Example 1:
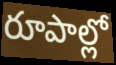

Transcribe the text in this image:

రూపాల్లో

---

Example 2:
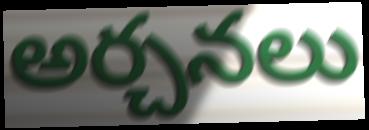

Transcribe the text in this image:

అర్చనలు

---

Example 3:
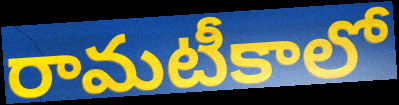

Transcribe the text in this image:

రామటీకాలో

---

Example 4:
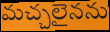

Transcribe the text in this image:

మచ్చలైనను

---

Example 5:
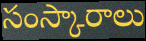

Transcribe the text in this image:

సంస్కారాలు